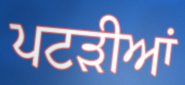
ਪਟਡ਼ੀਆਂ